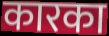
कारका